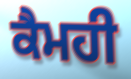
ਕੈਮਹੀ